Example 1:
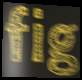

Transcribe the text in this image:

fig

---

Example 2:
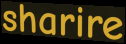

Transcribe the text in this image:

sharire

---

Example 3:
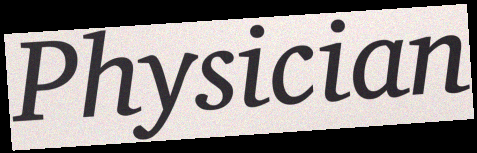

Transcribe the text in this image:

Physician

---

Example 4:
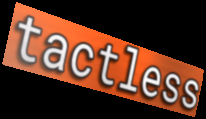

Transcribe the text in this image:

tactless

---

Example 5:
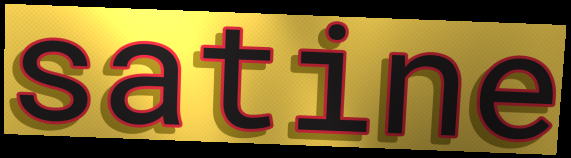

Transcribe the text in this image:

satine